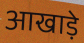
आखाड़े